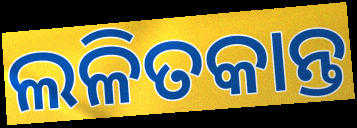
ଲଳିତକାନ୍ତ